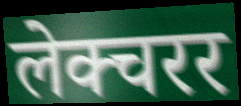
लेक्चरर